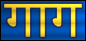
गाग